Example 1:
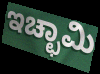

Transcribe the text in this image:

ಇಚ್ಛಾಮಿ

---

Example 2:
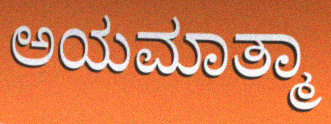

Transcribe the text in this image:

ಅಯಮಾತ್ಮಾ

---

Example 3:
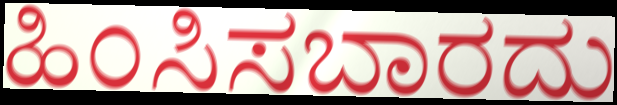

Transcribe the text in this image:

ಹಿಂಸಿಸಬಾರದು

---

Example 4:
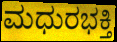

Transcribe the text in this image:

ಮಧುರಭಕ್ತಿ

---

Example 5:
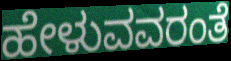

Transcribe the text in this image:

ಹೇಳುವವರಂತೆ